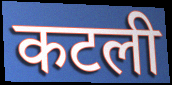
कटली